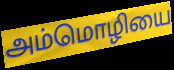
அம்மொழியை